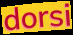
dorsi